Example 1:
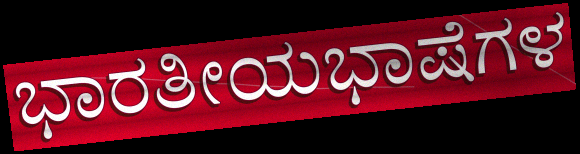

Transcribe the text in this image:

ಭಾರತೀಯಭಾಷೆಗಳ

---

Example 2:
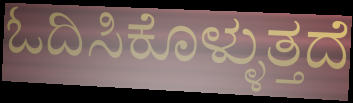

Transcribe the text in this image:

ಓದಿಸಿಕೊಳ್ಳುತ್ತದೆ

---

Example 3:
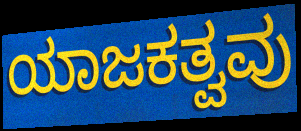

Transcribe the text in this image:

ಯಾಜಕತ್ವವು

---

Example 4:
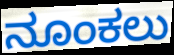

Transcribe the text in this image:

ನೂಂಕಲು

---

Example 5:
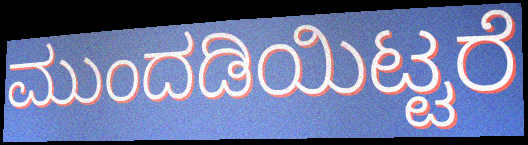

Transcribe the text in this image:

ಮುಂದಡಿಯಿಟ್ಟರೆ